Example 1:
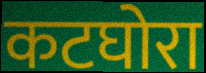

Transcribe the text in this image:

कटघोरा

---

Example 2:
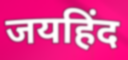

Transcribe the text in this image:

जयहिंद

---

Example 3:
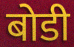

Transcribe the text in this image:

बोडी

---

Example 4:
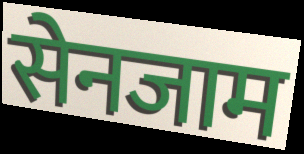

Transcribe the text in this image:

सेनजाम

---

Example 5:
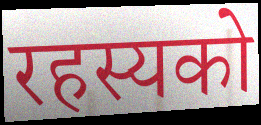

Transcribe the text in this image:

रहस्यको